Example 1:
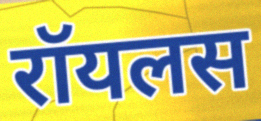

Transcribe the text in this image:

रॉयलस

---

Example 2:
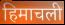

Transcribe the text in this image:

हिमाचली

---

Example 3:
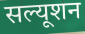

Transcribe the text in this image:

सल्यूशन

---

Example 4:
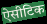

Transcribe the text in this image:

ऐसीटिक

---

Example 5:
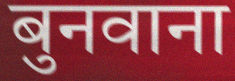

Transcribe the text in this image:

बुनवाना